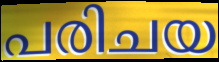
പരിചയ